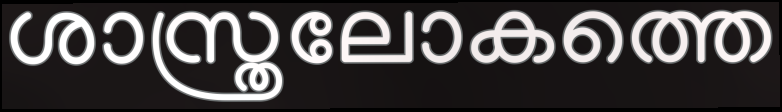
ശാസ്ത്രലോകത്തെ